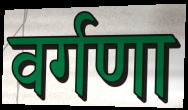
वर्गणा